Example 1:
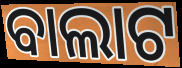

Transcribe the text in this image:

ବାଲାଟ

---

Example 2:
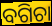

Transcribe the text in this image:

ବଗିଚା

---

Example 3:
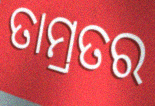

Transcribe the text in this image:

ତାମ୍ରତର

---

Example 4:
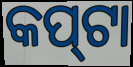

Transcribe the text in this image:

କପ୍‍ଟା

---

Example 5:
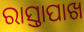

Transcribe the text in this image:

ରାସ୍ତାପାଖ